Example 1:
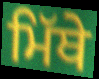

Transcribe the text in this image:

ਮਿੱਥੇ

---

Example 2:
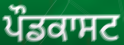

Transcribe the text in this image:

ਪੌਡਕਾਸਟ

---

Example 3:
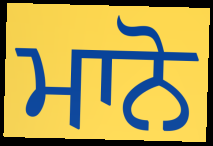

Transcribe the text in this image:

ਮਾਨੋ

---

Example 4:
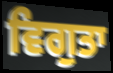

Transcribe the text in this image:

ਵਿਗੁਤਾ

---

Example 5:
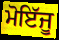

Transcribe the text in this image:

ਮੋਇੱਜੂ